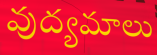
వుద్యమాలు